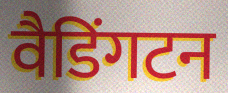
वैडिंगटन